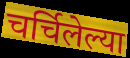
चर्चिलेल्या